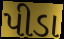
પીડા